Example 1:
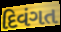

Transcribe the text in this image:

દિવંગત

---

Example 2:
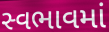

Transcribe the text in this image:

સ્વભાવમાં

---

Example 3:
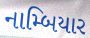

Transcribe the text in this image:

નામ્બિયાર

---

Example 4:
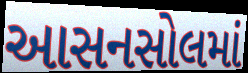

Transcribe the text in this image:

આસનસોલમાં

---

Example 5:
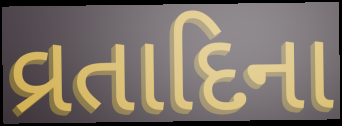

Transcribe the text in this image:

વ્રતાદિના